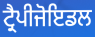
ਟ੍ਰੈਪੀਜੋਇਡਲ